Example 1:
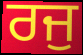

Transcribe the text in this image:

ਰਜੁ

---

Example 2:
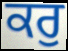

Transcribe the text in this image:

ਕਰੁ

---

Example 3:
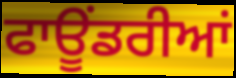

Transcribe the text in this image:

ਫਾਊਂਡਰੀਆਂ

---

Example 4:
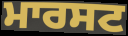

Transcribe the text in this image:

ਮਾਰਸਟ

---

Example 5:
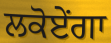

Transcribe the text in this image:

ਲਕੋਏਂਗਾ